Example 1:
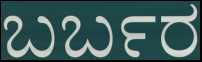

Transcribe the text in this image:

ಬರ್ಬರ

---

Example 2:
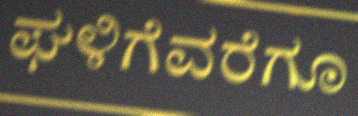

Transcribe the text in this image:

ಘಳಿಗೆವರೆಗೂ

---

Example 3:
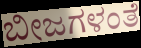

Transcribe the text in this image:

ಬೀಜಗಳಂತೆ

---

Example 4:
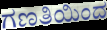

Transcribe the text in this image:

ಗಣತಿಯಿಂದ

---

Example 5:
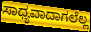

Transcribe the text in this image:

ಸಾಧ್ಯವಾದಾಗಲೆಲ್ಲ